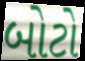
બોટો